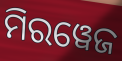
ମିରୱେଜ